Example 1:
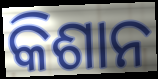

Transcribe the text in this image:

କିଶାନ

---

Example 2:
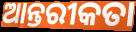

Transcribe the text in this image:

ଆନ୍ତରୀକତା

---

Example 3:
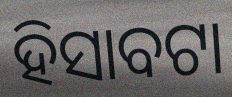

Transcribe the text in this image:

ହିସାବଟା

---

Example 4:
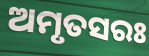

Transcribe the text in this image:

ଅମୃତସରଃ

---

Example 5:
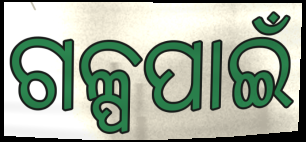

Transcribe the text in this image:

ଗଳ୍ପପାଇଁ